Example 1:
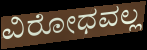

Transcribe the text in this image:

ವಿರೋಧವಲ್ಲ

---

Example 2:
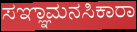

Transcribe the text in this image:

ಸಞ್ಞಾಮನಸಿಕಾರಾ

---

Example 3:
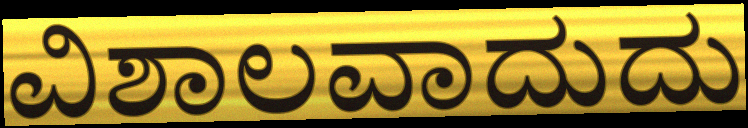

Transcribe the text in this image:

ವಿಶಾಲವಾದುದು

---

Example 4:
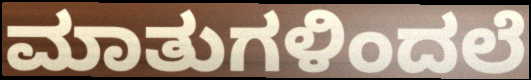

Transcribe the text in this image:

ಮಾತುಗಳಿಂದಲೆ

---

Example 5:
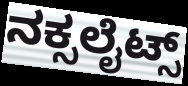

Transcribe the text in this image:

ನಕ್ಸಲೈಟ್ಸ್